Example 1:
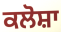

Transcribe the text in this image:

ਕਲੋਸ਼ਾ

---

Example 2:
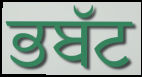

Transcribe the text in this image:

ਭਬੱਟ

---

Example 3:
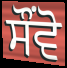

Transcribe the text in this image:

ਸੌਂਵੋ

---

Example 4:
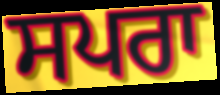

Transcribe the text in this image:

ਸਪਰਾ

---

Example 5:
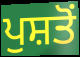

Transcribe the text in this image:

ਪੁਸ਼ਤੋਂ